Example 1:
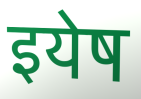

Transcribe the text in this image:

इयेष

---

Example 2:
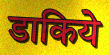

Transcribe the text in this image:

डाकिये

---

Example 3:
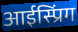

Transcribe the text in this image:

आईस्प्रिंग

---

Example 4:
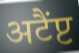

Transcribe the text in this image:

अटैंप्ट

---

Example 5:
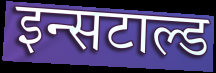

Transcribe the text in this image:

इन्सटाल्ड